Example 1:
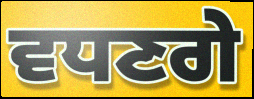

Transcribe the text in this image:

ਵਧਣਗੇ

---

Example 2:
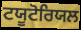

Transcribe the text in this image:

ਟਯੂਟੋਰਿਯਲ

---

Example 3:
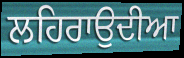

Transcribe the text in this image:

ਲਹਿਰਾਉਦੀਆ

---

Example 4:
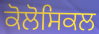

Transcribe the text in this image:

ਕੋਲੋਸਿਕਲ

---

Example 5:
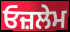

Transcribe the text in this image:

ਓਜ਼ਲੇਮ